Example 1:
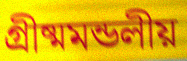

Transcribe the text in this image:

গ্রীষ্মমন্ডলীয়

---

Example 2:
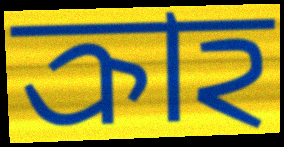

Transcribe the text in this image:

ক্রাহ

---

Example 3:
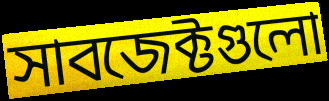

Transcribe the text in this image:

সাবজেক্টগুলো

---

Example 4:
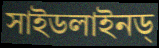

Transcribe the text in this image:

সাইডলাইনড্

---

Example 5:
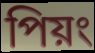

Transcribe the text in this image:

পিয়ং